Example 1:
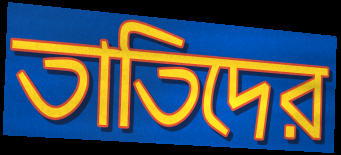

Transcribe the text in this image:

তাতিদের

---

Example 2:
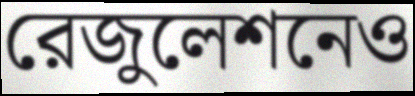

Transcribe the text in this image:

রেজুলেশনেও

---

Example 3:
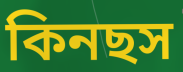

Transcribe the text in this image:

কিনছস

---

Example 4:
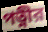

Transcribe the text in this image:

পত্নীর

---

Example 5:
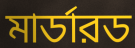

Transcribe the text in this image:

মার্ডারড